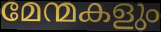
മേന്മകളും